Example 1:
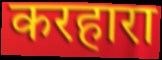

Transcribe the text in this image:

करहारा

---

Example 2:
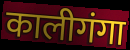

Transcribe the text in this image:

कालीगंगा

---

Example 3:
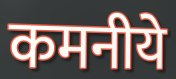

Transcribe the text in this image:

कमनीये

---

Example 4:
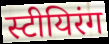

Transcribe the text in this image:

स्टीयिरंग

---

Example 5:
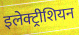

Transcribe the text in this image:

इलेक्‍ट्रीशियन